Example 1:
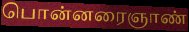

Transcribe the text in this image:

பொன்னரைஞாண்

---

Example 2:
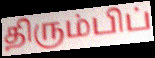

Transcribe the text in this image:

திரும்பிப்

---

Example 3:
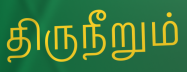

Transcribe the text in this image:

திருநீறும்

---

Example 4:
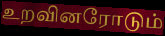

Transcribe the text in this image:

உறவினரோடும்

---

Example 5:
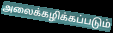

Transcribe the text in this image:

அலைக்கழிக்கப்படும்